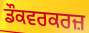
ਡੌਕਵਰਕਰਜ਼